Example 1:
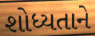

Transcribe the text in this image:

શોધ્યતાને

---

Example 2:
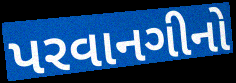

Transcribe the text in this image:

પરવાનગીનો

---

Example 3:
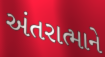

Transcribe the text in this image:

અંતરાત્માને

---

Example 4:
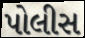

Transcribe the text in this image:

પોલીસ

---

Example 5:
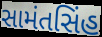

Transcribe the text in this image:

સામંતસિંહ